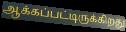
ஆக்கப்பட்டிருக்கிறது